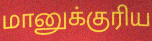
மானுக்குரிய